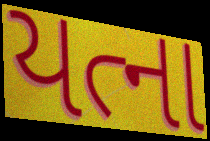
યત્ના